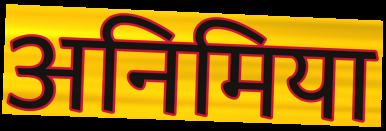
अनिमिया